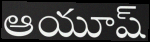
ఆయూష్